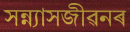
সন্ন্যাসজীৱনৰ